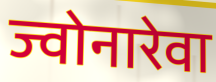
ज्वोनारेवा